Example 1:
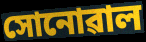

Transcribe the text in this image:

সোনোৱাল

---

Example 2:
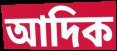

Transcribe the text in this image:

আদিক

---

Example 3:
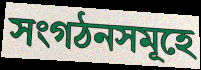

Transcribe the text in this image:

সংগঠনসমূহে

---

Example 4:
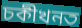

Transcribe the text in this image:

চকীখনত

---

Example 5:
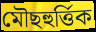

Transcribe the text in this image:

মৌছহুৰ্ত্তিক